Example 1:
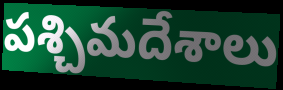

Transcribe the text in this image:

పశ్చిమదేశాలు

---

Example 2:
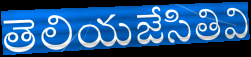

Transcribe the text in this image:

తెలియజేసితివి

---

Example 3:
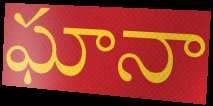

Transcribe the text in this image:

ఘానా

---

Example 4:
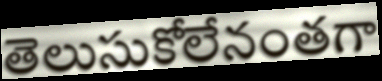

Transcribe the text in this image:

తెలుసుకోలేనంతగా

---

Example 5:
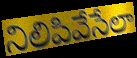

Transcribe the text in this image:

నిలిపివేసేలా